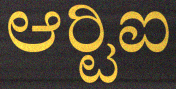
ಆರ್‍ಟಿಐ